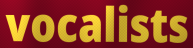
vocalists